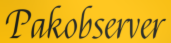
Pakobserver